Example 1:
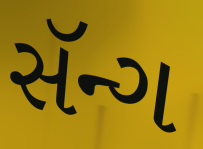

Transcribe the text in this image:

સૅન્ગ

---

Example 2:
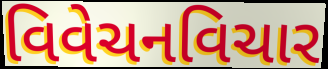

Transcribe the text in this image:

વિવેચનવિચાર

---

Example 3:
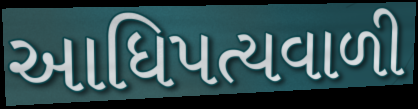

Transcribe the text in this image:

આધિપત્યવાળી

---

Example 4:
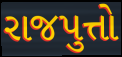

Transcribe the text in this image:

રાજપુત્તો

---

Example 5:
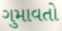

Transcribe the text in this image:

ગુમાવતો